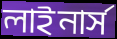
লাইনার্স